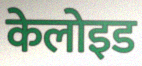
केलोइड